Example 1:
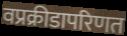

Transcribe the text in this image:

वप्रक्रीडापरिणत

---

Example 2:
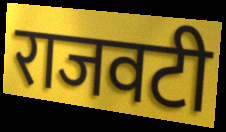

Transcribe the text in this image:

राजवटी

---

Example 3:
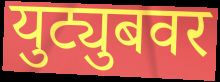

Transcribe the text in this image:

युट्युबवर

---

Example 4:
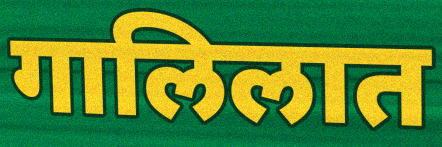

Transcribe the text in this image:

गालिलात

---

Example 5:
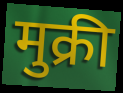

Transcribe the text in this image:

मुक्री